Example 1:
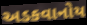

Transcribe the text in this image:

અડકવાનોય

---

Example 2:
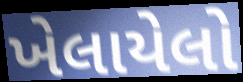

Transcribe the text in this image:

ખેલાયેલો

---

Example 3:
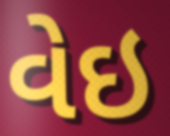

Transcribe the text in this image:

વેઇ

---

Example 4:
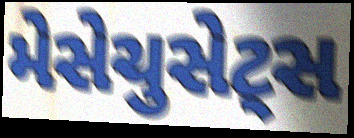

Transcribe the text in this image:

મેસેચુસેટ્સ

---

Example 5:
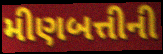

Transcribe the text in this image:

મીણબત્તીની